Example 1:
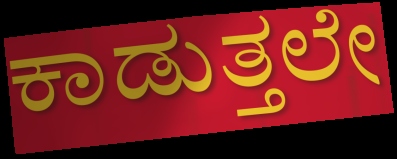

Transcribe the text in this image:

ಕಾಡುತ್ತಲೇ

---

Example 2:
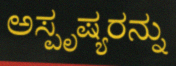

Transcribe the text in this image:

ಅಸ್ಪೃಷ್ಯರನ್ನು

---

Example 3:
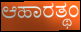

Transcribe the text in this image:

ಆಹಾರತ್ಥಂ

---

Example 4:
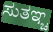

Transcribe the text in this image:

ಸುತಞ್ಚ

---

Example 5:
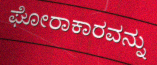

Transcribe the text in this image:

ಘೋರಾಕಾರವನ್ನು